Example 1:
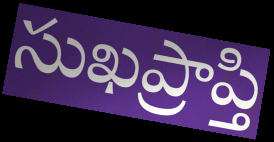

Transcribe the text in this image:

సుఖప్రాప్తి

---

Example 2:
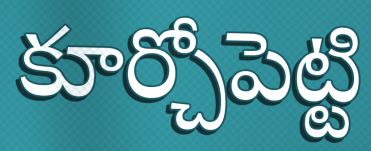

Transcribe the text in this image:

కూర్చోపెట్టి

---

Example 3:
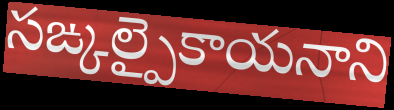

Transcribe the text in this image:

సఙ్కల్పైకాయనాని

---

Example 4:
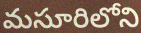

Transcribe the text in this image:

మసూరిలోని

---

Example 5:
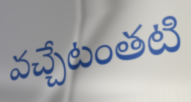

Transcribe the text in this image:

వచ్చేటంతటి